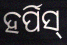
ହର୍ପିସ୍